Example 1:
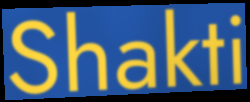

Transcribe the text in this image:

Shakti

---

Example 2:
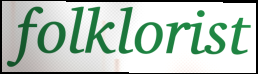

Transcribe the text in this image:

folklorist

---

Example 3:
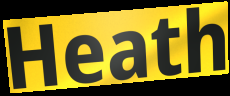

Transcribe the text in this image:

Heath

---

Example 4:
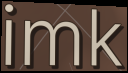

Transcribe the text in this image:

imk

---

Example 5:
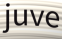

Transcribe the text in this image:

juve